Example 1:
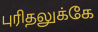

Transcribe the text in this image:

புரிதலுக்கே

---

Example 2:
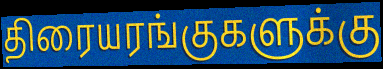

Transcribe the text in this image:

திரையரங்குகளுக்கு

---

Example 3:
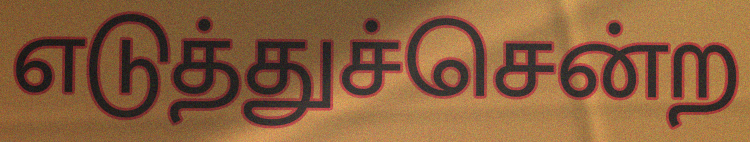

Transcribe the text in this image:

எடுத்துச்சென்ற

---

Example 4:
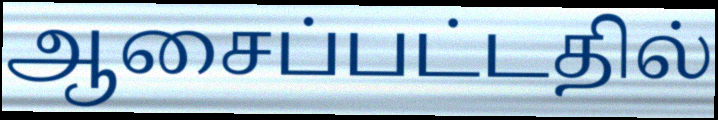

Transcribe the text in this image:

ஆசைப்பட்டதில்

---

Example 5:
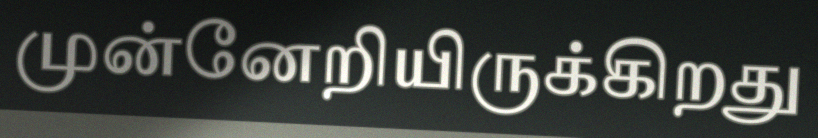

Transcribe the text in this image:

முன்னேறியிருக்கிறது